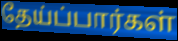
தேய்ப்பார்கள்